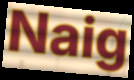
Naig